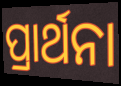
ପ୍ରାର୍ଥନା